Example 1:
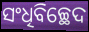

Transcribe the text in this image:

ସଂଧିବିଚ୍ଛେଦ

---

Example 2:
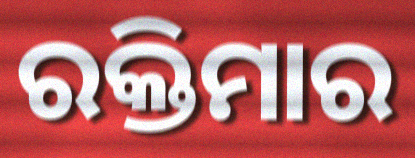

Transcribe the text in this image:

ରକ୍ତିମାର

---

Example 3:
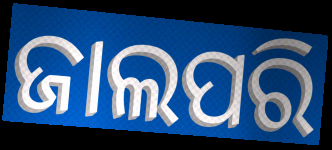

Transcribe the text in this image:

ଜାଲପରି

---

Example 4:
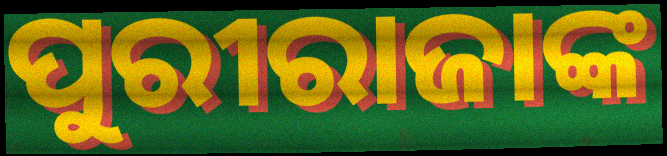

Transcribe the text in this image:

ପୁରୀରାଜାଙ୍କ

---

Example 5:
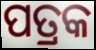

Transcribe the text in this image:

ପତ୍ରକ